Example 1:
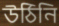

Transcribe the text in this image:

উঠিনি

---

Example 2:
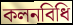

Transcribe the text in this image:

কলনবিধি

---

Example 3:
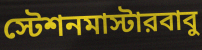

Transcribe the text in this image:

স্টেশনমাস্টারবাবু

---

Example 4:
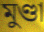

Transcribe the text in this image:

মুণ্ডা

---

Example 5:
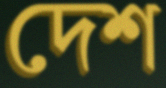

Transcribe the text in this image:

দেশ